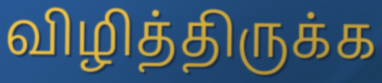
விழித்திருக்க